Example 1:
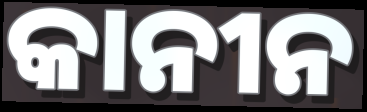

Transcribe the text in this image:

କାନୀନ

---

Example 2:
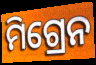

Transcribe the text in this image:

ମିଗ୍ରେନ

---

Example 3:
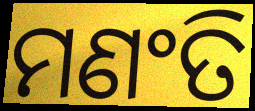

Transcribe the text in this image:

ମଣଂତି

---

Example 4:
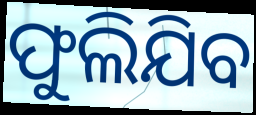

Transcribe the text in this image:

ଫୁଲିଯିବ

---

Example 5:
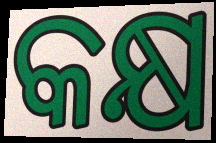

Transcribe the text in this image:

କକ୍ଷ